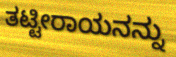
ತಟ್ಟೀರಾಯನನ್ನು